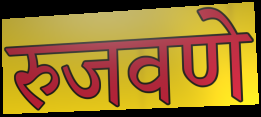
रुजवणे